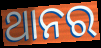
ଥାନର